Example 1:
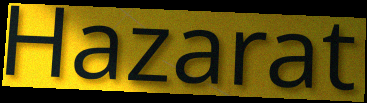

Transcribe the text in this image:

Hazarat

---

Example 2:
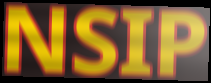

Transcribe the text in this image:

NSIP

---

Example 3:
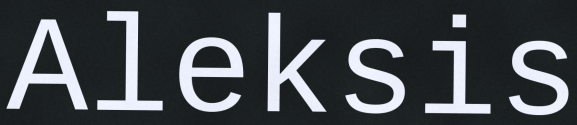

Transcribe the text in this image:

Aleksis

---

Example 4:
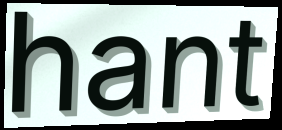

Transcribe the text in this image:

hant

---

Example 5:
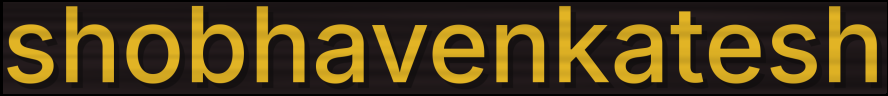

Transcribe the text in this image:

shobhavenkatesh